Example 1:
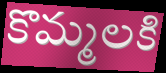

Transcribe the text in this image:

కొమ్మలకి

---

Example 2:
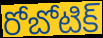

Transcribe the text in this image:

రోబోటిక్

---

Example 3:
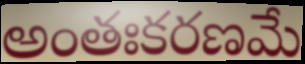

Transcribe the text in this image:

అంతఃకరణమే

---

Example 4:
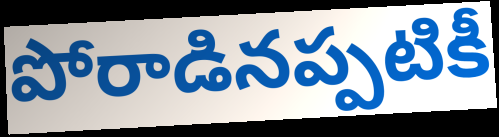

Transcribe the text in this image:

పోరాడినప్పటికీ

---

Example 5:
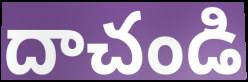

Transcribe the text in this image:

దాచండి